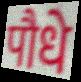
पौधे